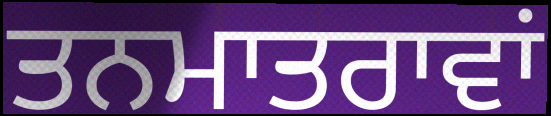
ਤਨਮਾਤਰਾਵਾਂ